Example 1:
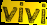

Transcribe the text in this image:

vivi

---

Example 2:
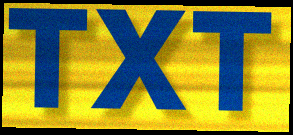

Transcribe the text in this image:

TXT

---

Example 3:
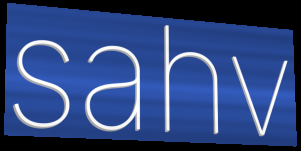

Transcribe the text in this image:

sahv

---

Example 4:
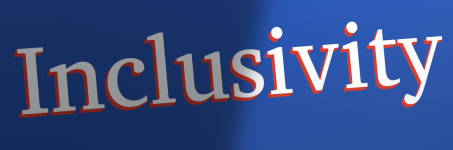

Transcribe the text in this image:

Inclusivity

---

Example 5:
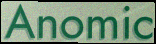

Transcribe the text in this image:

Anomic